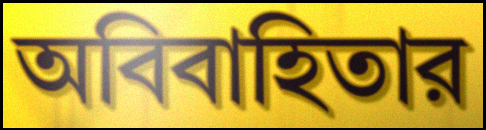
অবিবাহিতার